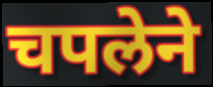
चपलेने